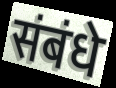
संबंधे